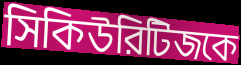
সিকিউরিটিজকে